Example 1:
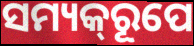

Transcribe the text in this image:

ସମ୍ୟକ୍‌ରୂପେ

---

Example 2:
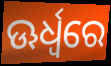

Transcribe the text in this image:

ଊର୍ଧ୍ୱରେ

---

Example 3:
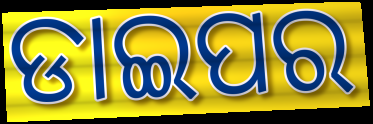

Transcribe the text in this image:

ଡାଇପର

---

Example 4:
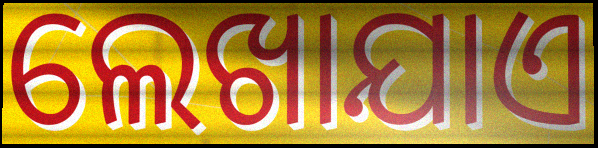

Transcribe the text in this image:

ଲେଖାଯାଏ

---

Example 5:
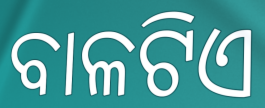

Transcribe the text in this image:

ବାଳଟିଏ